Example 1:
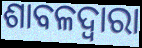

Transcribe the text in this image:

ଶାବଳଦ୍ୱାରା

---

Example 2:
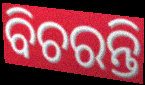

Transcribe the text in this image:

ବିଚରନ୍ତି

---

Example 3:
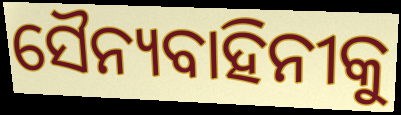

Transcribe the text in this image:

ସୈନ୍ୟବାହିନୀକୁ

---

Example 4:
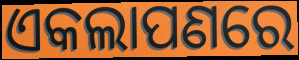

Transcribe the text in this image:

ଏକଲାପଣରେ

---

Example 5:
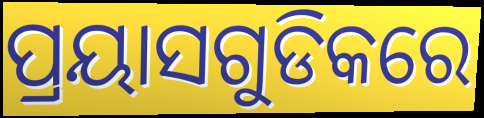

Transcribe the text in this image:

ପ୍ରୟାସଗୁଡିକରେ